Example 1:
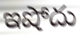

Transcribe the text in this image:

ఇషోదు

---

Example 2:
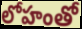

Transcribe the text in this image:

లోహంతో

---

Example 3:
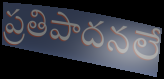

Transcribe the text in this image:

ప్రతిపాదనలే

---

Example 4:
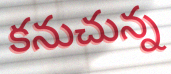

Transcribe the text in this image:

కనుచున్న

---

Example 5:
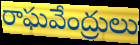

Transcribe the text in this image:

రాఘవేంద్రులు